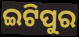
ଇଟିପୁର